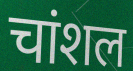
चांशल